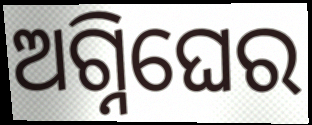
ଅଗ୍ନିଘେର